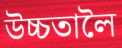
উচ্চতালৈ